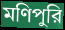
মণিপুরি